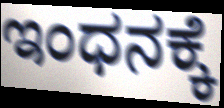
ಇಂಧನಕ್ಕೆ